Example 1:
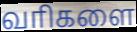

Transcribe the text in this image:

வரிகளை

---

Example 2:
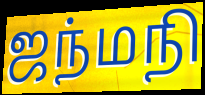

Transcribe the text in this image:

ஜந்மநி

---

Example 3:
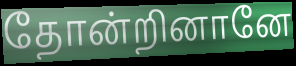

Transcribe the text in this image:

தோன்றினானே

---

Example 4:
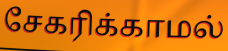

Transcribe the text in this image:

சேகரிக்காமல்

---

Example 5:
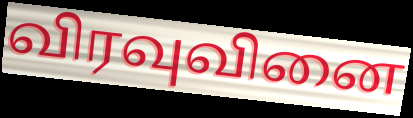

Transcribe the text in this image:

விரவுவினை